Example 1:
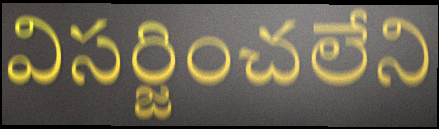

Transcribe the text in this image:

విసర్జించలేని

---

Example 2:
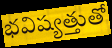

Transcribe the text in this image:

భవిష్యత్తుతో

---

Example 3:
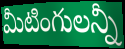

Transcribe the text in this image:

మీటింగులన్నీ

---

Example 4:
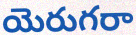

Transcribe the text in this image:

యెరుగరా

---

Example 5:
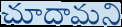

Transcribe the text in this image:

చూదామని